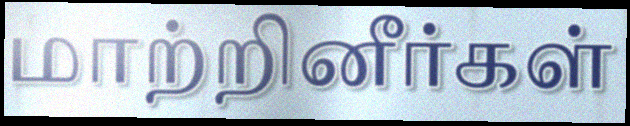
மாற்றினீர்கள்